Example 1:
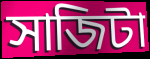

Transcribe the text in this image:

সাজিটা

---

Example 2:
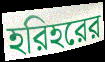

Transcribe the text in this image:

হরিহরের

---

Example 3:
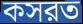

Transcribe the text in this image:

কসরত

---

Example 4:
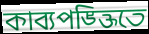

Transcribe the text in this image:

কাব্যপঙ্ক্তিতে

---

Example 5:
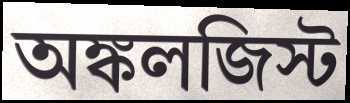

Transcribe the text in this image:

অঙ্কলজিস্ট